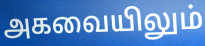
அகவையிலும்